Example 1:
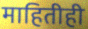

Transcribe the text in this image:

माहितीही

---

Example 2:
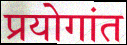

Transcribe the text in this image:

प्रयोगांत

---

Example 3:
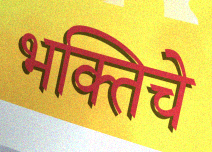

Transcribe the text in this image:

भक्तिचे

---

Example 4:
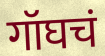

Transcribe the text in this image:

गॉघचं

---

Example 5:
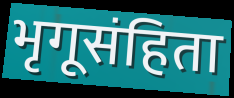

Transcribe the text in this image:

भृगूसंहिता